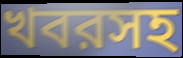
খবরসহ